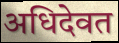
अधिदेवत